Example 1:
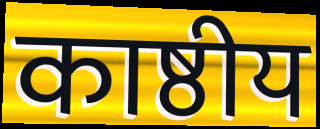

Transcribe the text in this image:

काष्ठीय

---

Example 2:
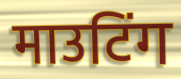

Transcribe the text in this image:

माउटिंग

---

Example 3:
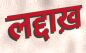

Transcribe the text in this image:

लद्दाख़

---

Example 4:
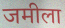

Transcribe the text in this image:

जमीला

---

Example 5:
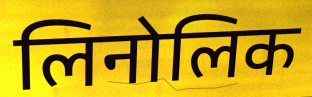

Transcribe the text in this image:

लिनोलिक